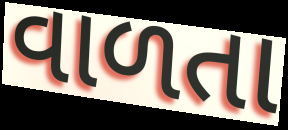
વાળતા